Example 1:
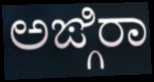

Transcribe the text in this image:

ಅಙ್ಗಿರಾ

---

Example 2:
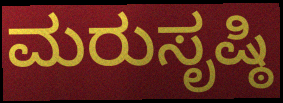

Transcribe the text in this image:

ಮರುಸೃಷ್ಠಿ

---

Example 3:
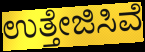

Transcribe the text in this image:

ಉತ್ತೇಜಿಸಿವೆ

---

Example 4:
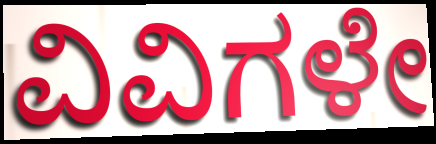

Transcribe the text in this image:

ವಿವಿಗಳೇ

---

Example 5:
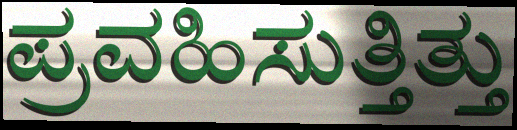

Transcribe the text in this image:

ಪ್ರವಹಿಸುತ್ತಿತ್ತು